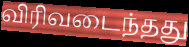
விரிவடைந்தது